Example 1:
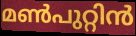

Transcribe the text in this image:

മൺപുറ്റിൻ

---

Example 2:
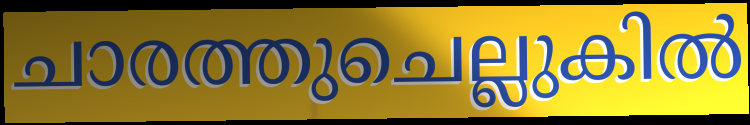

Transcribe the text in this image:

ചാരത്തുചെല്ലുകിൽ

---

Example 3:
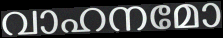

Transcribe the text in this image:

വാഹനമോ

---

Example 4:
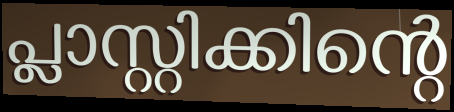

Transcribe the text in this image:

പ്ലാസ്റ്റിക്കിന്റെ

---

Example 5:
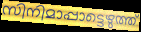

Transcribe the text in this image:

സിനിമാപ്പാട്ടെഴുത്ത്